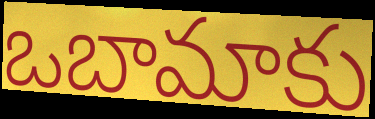
ఒబామాకు